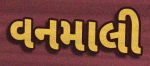
વનમાલી